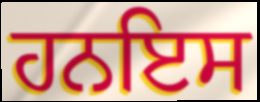
ਹਨਇਸ